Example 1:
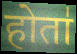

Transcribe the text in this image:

होता॑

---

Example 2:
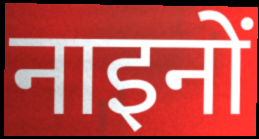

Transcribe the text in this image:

नाइनों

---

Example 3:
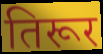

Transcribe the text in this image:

तिरूर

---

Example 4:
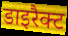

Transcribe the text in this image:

डाइरैक्ट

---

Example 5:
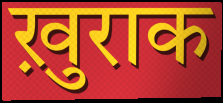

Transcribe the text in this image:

ख़ुराक